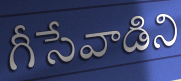
గీసేవాడిని